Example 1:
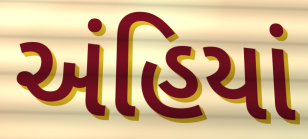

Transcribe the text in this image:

અંહિયાં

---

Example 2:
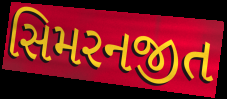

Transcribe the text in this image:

સિમરનજીત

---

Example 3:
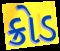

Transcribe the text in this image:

ક્રોડ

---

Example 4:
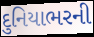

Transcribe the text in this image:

દુનિયાભરની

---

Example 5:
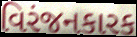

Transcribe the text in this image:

વિરંજનકારક